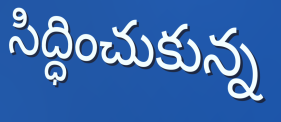
సిద్ధించుకున్న